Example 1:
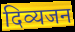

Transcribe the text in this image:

दिव्यजन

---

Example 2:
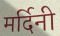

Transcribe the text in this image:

मर्दिनी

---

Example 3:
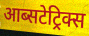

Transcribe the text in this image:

आब्सटेट्रिक्स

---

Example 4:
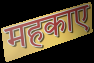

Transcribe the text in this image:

महकाए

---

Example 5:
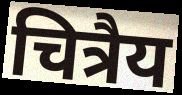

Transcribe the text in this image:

चित्रैय